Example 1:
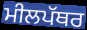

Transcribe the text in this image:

ਮੀਲਪੱਥਰ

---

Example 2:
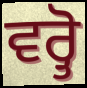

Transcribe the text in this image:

ਵਰ੍ਤੋ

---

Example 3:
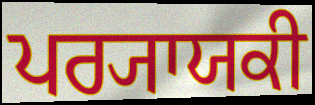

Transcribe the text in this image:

ਪਰ੍ਯਾਯਕੀ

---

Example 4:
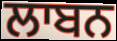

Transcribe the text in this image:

ਲਾਬਨ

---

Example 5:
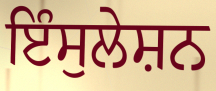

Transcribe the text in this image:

ਇੰਸੁਲੇਸ਼ਨ